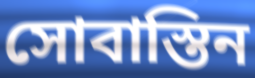
সোবাস্তিন